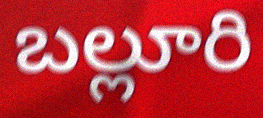
బల్లూరి